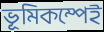
ভূমিকম্পেই